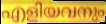
എളിയവനും